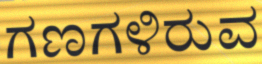
ಗಣಗಳಿರುವ